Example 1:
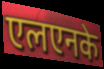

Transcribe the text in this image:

एलएनके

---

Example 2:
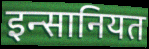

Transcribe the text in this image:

इन्सानियत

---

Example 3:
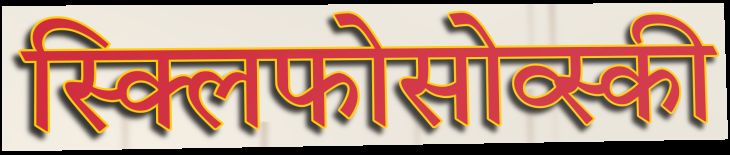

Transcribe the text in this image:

स्क्लिफोसोव्स्की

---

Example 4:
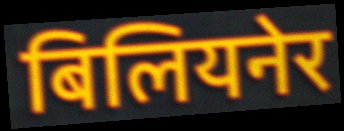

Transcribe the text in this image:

बिलियनेर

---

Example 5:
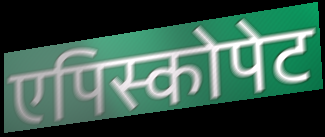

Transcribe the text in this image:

एपिस्कोपेट